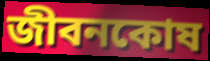
জীবনকোষ